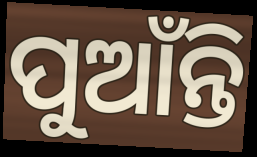
ପୁଆଁନ୍ତି